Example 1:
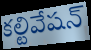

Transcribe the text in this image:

కల్టివేషన్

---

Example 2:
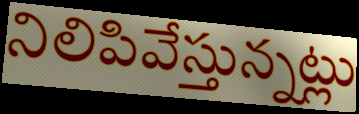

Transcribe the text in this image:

నిలిపివేస్తున్నట్లు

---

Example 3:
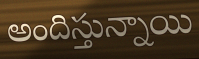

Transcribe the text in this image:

అందిస్తున్నాయి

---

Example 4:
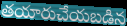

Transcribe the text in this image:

తయారుచేయబడిన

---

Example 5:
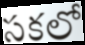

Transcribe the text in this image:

సకలో